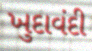
ખુદાવંદી